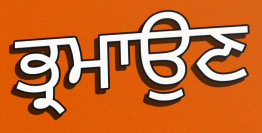
ਭ੍ਰਮਾਉਣ